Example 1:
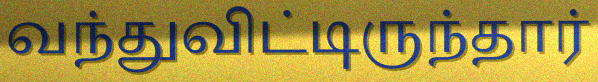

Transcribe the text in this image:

வந்துவிட்டிருந்தார்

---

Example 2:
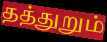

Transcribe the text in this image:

தத்துறும்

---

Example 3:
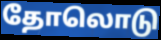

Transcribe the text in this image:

தோலொடு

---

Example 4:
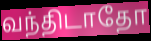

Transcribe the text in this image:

வந்திடாதோ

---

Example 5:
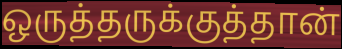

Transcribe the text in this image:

ஒருத்தருக்குத்தான்